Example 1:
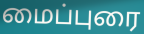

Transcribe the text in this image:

மைப்புரை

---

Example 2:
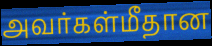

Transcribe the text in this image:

அவர்கள்மீதான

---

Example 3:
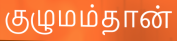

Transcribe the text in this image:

குழுமம்தான்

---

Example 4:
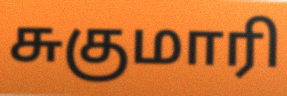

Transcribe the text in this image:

சுகுமாரி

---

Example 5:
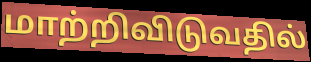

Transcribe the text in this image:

மாற்றிவிடுவதில்